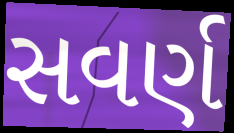
સવર્ણ